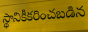
స్థానికీకరించబడిన